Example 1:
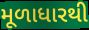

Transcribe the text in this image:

મૂળાધારથી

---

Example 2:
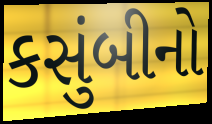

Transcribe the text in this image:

કસુંબીનો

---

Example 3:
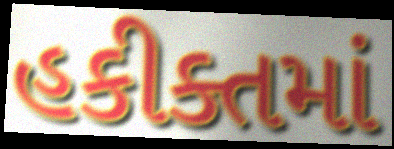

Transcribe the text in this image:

હકીક્તમાં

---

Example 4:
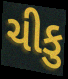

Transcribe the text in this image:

ચીકુ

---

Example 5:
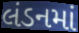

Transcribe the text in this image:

લંડનમાં